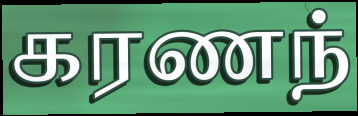
கரணந்